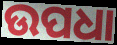
ଉପଧା